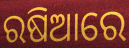
ରଷିଆରେ